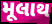
મૂલાથ